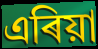
এৰিয়া